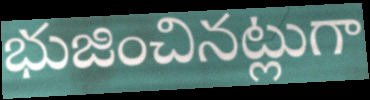
భుజించినట్లుగా